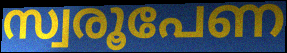
സ്വരൂപേണ